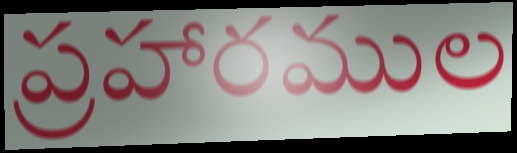
ప్రహారముల